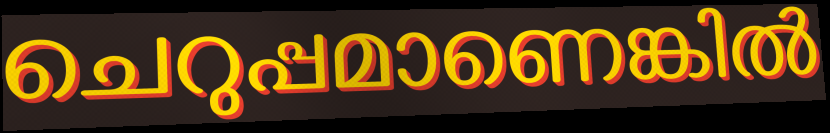
ചെറുപ്പമാണെങ്കിൽ